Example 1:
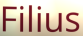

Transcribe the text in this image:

Filius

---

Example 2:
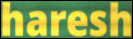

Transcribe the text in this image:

haresh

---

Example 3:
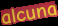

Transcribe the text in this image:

alcuna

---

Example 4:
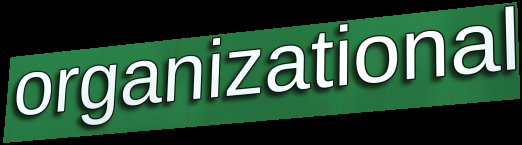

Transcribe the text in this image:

organizational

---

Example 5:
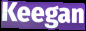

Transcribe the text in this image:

Keegan